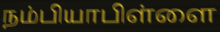
நம்பியாபிள்ளை